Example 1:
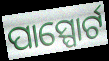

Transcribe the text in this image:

ପାସ୍ପୋର୍ଟ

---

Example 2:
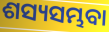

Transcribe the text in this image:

ଶସ୍ୟସମ୍ଭବା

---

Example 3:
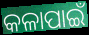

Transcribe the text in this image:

କଳାପାଇଁ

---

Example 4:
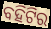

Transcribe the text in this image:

ବହିଟିର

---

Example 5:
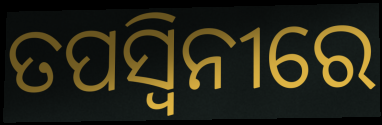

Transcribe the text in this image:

ତପସ୍ଵିନୀରେ